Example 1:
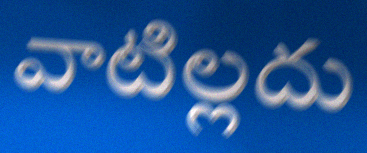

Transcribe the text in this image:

వాటిల్లదు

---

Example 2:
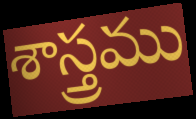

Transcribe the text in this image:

శాస్త్రము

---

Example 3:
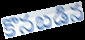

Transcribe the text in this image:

కొనబడిన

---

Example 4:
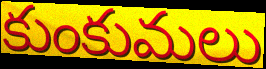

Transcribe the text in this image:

కుంకుమలు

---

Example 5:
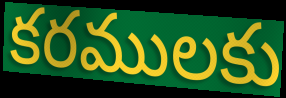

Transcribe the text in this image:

కరములకు